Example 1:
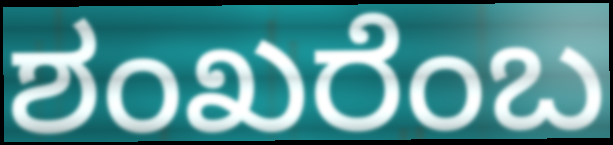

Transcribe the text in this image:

ಶಂಖರೆಂಬ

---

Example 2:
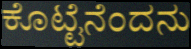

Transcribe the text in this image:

ಕೊಟ್ಟೆನೆಂದನು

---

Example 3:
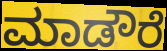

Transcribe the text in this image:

ಮಾಡೌರೆ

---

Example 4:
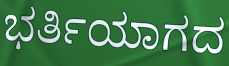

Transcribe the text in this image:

ಭರ್ತಿಯಾಗದ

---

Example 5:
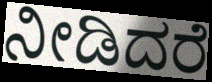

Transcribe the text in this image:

ನೀಡಿದರೆ